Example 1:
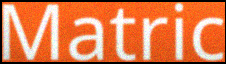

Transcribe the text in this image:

Matric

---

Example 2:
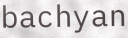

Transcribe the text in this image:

bachyan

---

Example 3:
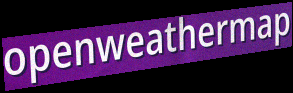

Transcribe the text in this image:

openweathermap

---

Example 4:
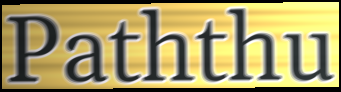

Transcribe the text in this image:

Paththu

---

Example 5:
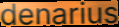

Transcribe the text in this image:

denarius